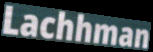
Lachhman